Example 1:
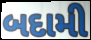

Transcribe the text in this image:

બદામી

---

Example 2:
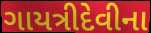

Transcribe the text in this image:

ગાયત્રીદેવીના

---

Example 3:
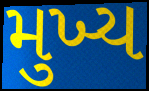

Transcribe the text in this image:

મુખ્ય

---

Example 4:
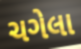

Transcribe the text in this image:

ચગેલા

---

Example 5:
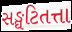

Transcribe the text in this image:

સઙ્ઘટિતત્તા